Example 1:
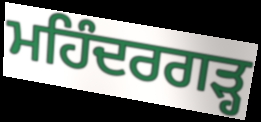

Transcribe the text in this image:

ਮਹਿੰਦਰਗੜ੍ਹ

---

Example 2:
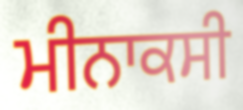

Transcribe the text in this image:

ਮੀਨਾਕਸੀ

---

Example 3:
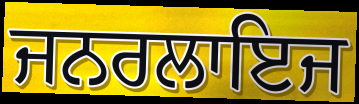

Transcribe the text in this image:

ਜਨਰਲਾਇਜ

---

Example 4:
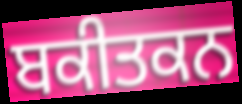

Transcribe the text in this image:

ਬਕੀਤਕਨ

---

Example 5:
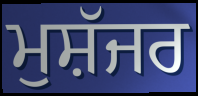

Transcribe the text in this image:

ਮੁਸ਼ੱਜਰ